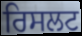
ਰਿਸਲਟ